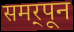
समर्पून